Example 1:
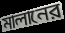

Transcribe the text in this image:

মালানের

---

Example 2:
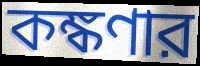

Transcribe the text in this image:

কঙ্কণার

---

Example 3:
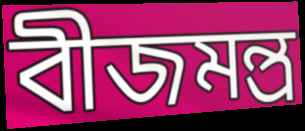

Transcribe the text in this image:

বীজমন্ত্র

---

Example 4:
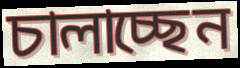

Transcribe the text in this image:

চালাচ্ছেন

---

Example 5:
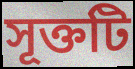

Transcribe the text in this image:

সূক্তটি